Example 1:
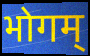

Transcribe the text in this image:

भोगम्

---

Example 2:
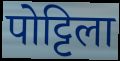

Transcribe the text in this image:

पोट्टिला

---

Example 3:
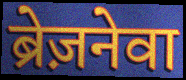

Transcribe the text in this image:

ब्रेज़नेवा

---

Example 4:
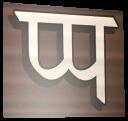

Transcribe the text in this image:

प्प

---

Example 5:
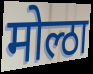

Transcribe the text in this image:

मोल्ठा